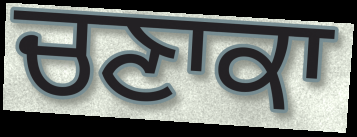
ਚਣਾਕਾ